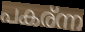
പകര്ന്ന